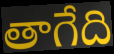
తాగేది